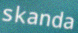
skanda